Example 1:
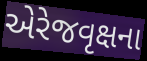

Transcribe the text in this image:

એરેજવૃક્ષના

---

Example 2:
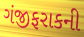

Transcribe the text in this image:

ગંજીફરાકની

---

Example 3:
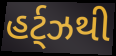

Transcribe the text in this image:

હર્ટ્ઝથી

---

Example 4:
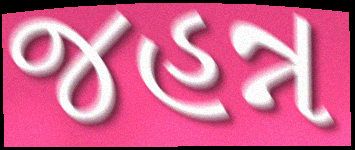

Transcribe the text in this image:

જહન્ન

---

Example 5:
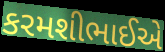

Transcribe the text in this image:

કરમશીભાઈએ